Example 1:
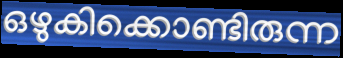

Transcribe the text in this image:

ഒഴുകിക്കൊണ്ടിരുന്ന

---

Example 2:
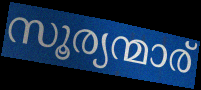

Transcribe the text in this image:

സൂര്യന്മാര്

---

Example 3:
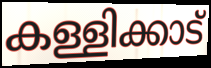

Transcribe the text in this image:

കള്ളിക്കാട്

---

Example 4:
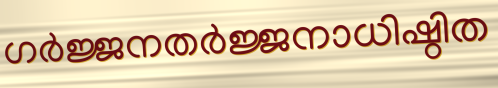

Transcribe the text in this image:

ഗർജ്ജനതർജ്ജനാധിഷ്ഠിത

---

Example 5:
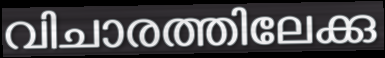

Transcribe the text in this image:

വിചാരത്തിലേക്കു